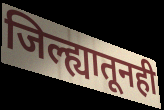
जिल्ह्यातूनही